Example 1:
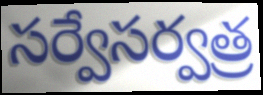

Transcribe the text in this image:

సర్వేసర్వత్ర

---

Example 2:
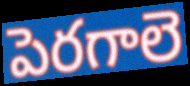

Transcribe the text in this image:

పెరగాలె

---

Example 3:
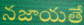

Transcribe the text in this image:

నజాయతే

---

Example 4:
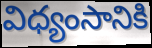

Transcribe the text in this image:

విధ్యంసానికి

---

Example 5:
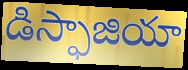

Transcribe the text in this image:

డిస్ఫాజియా